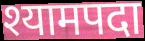
श्यामपदा